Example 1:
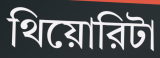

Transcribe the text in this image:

থিয়োরিটা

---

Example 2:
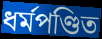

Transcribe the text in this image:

ধর্মপণ্ডিত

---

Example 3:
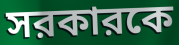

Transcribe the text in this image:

সরকারকে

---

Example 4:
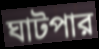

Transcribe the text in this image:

ঘাটপার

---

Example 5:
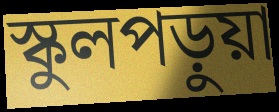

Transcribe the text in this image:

স্কুলপড়ুয়া